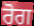
ਰੋਗ